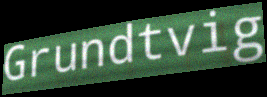
Grundtvig